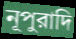
নূপুরাদি